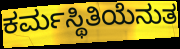
ಕರ್ಮಸ್ಥಿತಿಯೆನುತ